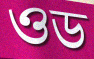
ওড